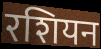
रशियन